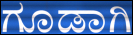
ಗೂಡಾಗಿ